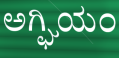
ಅಗ್ಘಿಯಂ